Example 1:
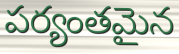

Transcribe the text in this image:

పర్యంతమైన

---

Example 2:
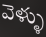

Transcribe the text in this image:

వెళ్ళు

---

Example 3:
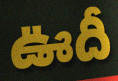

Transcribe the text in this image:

ఊదీ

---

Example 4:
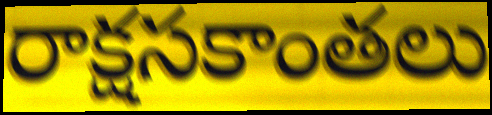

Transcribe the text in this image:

రాక్షసకాంతలు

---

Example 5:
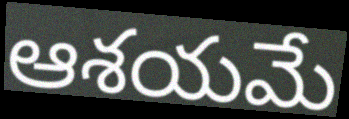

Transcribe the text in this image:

ఆశయమే